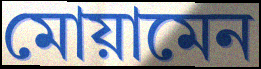
মোয়ামেন